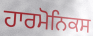
ਹਾਰਮੋਨਿਕਸ